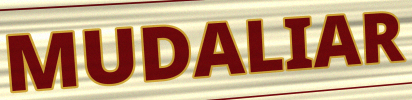
MUDALIAR